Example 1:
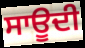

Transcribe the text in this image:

ਸਾਊਦੀ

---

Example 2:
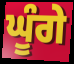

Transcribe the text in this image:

ਘੂੰਗੇ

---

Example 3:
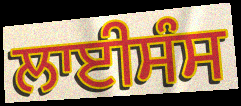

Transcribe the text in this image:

ਲਾਈਸੰਸ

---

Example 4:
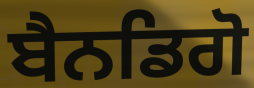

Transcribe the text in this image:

ਬੈਨਡਿਗੋ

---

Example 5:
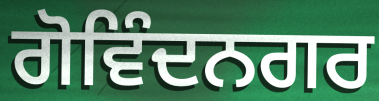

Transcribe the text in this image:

ਗੋਵਿੰਦਨਗਰ